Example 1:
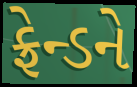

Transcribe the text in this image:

ફ્રેન્ડને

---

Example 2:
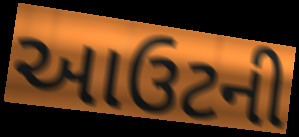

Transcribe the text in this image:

આઉટની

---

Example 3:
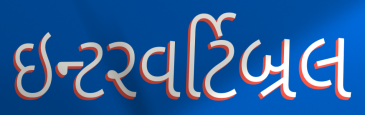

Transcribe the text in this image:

ઇન્ટરવર્ટિબ્રલ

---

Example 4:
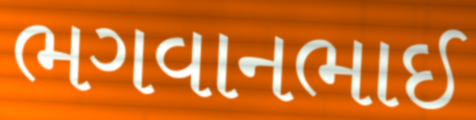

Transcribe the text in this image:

ભગવાનભાઈ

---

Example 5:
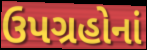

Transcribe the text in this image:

ઉપગ્રહોનાં